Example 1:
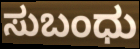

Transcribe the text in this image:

ಸುಬಂಧು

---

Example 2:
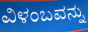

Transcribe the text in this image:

ವಿಳಂಬವನ್ನು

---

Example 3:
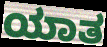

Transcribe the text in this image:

ಯಾತ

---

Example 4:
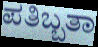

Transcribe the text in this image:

ಪತಿಬ್ಬತಾ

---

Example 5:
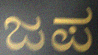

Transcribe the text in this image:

ಜಪ